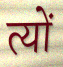
त्यों